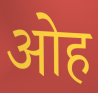
ओह